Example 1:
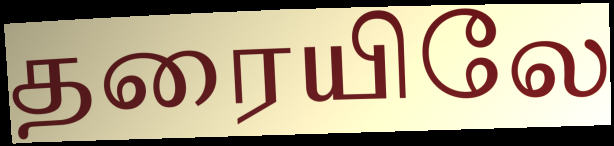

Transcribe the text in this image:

தரையிலே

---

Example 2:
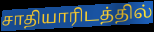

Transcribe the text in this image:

சாதியாரிடத்தில்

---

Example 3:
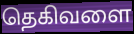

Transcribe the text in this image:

தெகிவளை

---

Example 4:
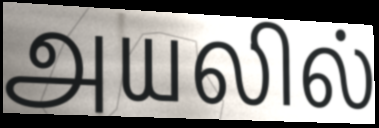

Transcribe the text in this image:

அயலில்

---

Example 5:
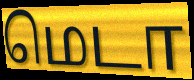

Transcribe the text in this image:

மெடா